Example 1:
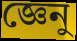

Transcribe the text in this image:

জ্ঞেনু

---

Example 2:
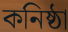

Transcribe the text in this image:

কনিষ্ঠা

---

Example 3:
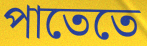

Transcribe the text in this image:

পাতেতে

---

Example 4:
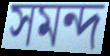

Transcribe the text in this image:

সমন্দ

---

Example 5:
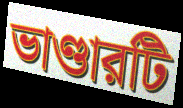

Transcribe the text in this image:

ভাণ্ডারটি